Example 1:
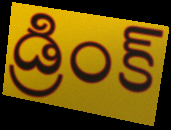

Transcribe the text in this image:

డ్రింక్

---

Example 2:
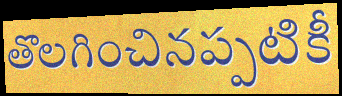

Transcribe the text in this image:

తొలగించినప్పటికీ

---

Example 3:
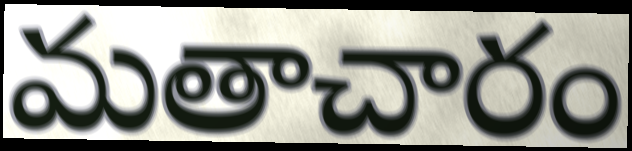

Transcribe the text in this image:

మతాచారం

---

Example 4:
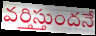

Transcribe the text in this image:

వర్తిస్తుందనే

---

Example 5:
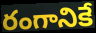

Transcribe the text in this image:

రంగానికే